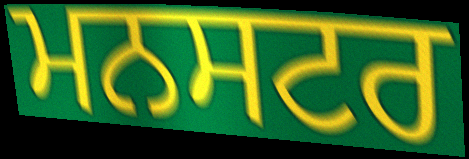
ਮਨਸਟਰ